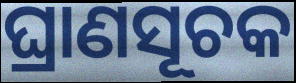
ଘ୍ରାଣସୂଚକ